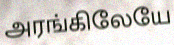
அரங்கிலேயே